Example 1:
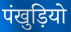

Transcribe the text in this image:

पंखुड़ियो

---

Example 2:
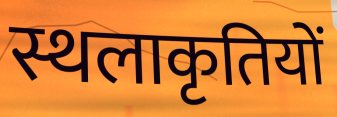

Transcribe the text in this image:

स्थलाकृतियों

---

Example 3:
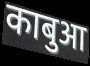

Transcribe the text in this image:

काबुआ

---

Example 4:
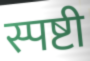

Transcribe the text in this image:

स्पष्टी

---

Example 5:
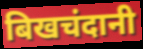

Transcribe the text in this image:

बिखचंदानी